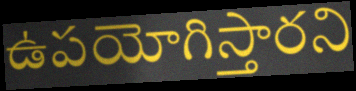
ఉపయోగిస్తారని